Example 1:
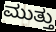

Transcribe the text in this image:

ಮುತ್ತು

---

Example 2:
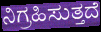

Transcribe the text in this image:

ನಿಗ್ರಹಿಸುತ್ತದೆ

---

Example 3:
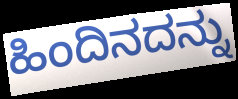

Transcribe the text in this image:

ಹಿಂದಿನದನ್ನು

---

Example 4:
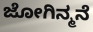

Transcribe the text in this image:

ಜೋಗಿನ್ಮನೆ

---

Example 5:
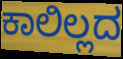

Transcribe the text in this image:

ಕಾಲಿಲ್ಲದ